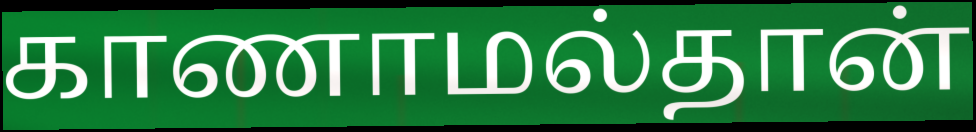
காணாமல்தான்